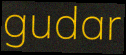
gudar